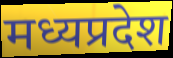
मध्‍यप्रदेश